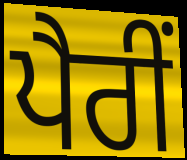
ਪੈਰੀਂ